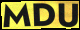
MDU